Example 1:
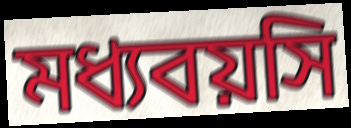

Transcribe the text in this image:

মধ্যবয়সি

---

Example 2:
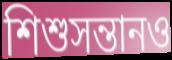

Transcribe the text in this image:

শিশুসন্তানও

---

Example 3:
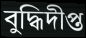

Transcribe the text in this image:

বুদ্ধিদীপ্ত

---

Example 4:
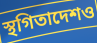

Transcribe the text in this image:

স্থগিতাদেশও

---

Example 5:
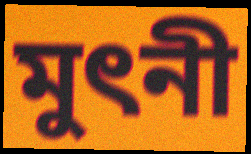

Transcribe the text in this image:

মুৎনী